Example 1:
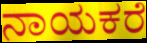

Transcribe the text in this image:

ನಾಯಕರೆ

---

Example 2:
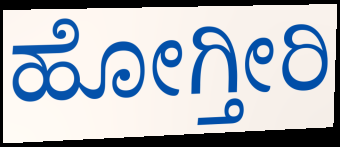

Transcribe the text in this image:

ಹೋಗ್ತೀರಿ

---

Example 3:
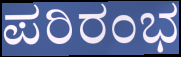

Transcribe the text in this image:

ಪರಿರಂಭ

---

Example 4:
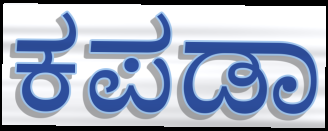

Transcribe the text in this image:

ಕಪಡಾ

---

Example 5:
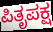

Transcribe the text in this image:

ಪಿತೃಪಕ್ಷ